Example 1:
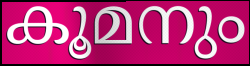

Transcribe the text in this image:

കൂമനും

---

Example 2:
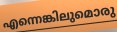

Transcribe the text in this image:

എന്നെങ്കിലുമൊരു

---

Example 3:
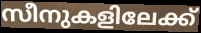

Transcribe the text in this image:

സീനുകളിലേക്ക്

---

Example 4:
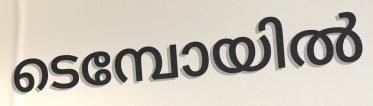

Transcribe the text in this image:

ടെമ്പോയിൽ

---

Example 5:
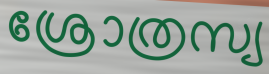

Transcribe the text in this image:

ശ്രോത്രസ്യ